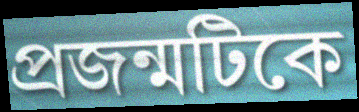
প্রজন্মটিকে